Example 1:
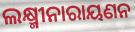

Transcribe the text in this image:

ଲକ୍ଷ୍ମୀନାରାୟଣନ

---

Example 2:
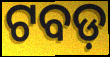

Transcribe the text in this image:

ଟବଡ଼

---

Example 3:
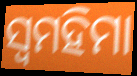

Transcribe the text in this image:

ସ୍ୱମହିମା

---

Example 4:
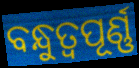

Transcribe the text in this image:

ବନ୍ଧୁତ୍ଵପୂର୍ଣ୍ଣ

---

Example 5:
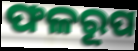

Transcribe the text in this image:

ଫଳରୂପ